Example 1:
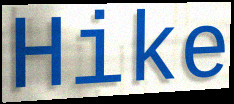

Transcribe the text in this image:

Hike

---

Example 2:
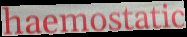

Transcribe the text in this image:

haemostatic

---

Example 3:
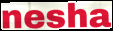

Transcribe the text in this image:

nesha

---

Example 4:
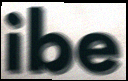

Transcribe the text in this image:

ibe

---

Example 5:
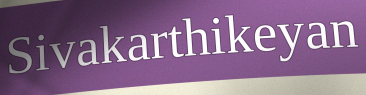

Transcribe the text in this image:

Sivakarthikeyan